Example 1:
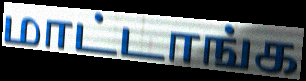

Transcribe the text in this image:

மாட்டாங்க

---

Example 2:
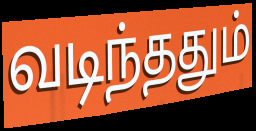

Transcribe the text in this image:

வடிந்ததும்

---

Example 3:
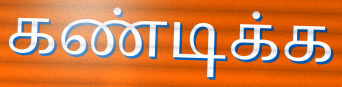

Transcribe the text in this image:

கண்டிக்க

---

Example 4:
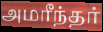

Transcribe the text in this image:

அமரீந்தர்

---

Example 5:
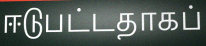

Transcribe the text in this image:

ஈடுபட்டதாகப்